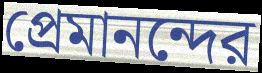
প্রেমানন্দের